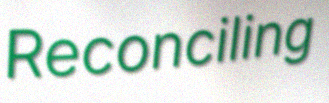
Reconciling